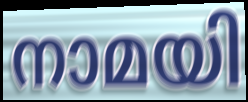
നാമയി